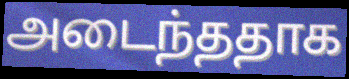
அடைந்ததாக